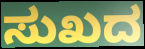
ಸುಖದ